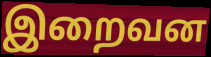
இறைவன